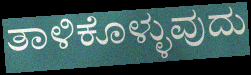
ತಾಳಿಕೊಳ್ಳುವುದು